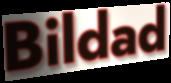
Bildad